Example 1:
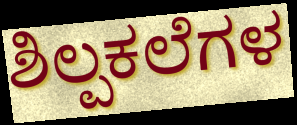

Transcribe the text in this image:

ಶಿಲ್ಪಕಲೆಗಳ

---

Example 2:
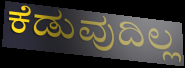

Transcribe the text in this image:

ಕೆಡುವುದಿಲ್ಲ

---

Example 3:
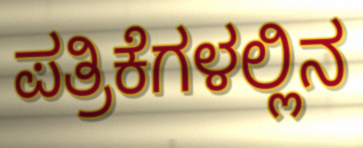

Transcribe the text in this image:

ಪತ್ರಿಕೆಗಳಲ್ಲಿನ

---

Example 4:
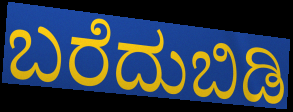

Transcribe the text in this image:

ಬರೆದುಬಿಡಿ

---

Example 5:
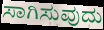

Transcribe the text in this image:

ಸಾಗಿಸುವುದು